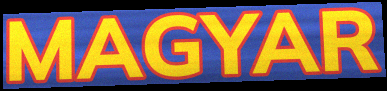
MAGYAR